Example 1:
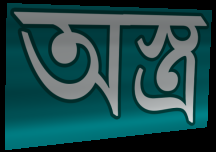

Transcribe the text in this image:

অস্ত্র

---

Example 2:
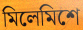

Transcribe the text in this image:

মিলেমিশে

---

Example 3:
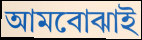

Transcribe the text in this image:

আমবোঝাই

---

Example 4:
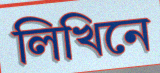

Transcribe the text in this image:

লিখিনে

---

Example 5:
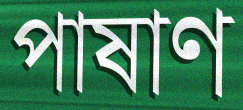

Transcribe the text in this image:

পাষাণ